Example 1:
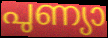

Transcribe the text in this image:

പുണ്യാ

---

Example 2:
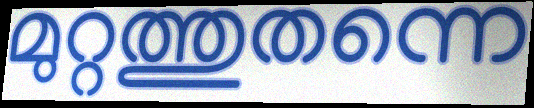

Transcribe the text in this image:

മുറ്റത്തുതന്നെ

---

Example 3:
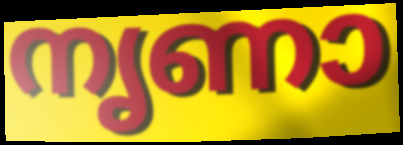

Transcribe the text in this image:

നൃണാ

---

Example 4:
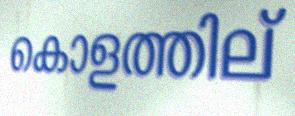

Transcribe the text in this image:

കൊളത്തില്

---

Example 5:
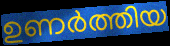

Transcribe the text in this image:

ഉണർത്തിയ